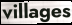
villages